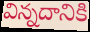
విన్నదానికి